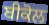
ਬੀਕੋਲ